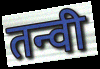
तन्वी